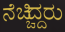
ನೆಚ್ಚಿದ್ದರು